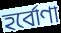
হর্বোণা